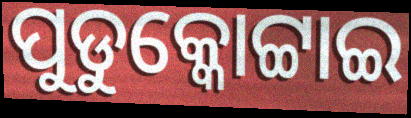
ପୁଡୁକ୍କୋଟ୍ଟାଇ